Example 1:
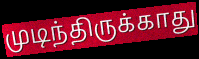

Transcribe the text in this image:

முடிந்திருக்காது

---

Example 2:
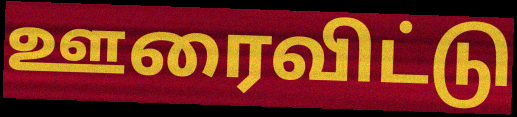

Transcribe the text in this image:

ஊரைவிட்டு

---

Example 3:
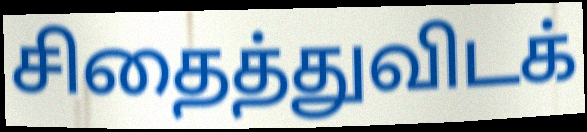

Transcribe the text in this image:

சிதைத்துவிடக்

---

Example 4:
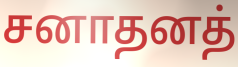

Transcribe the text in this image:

சனாதனத்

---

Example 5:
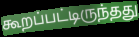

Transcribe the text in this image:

கூறப்பட்டிருந்தது